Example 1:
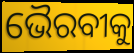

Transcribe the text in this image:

ଭୈରବୀକୁ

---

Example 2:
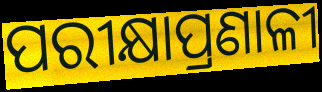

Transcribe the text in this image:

ପରୀକ୍ଷାପ୍ରଣାଳୀ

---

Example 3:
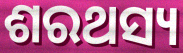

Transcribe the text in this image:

ଶରଥସ୍ୟ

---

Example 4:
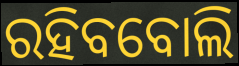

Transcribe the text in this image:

ରହିବବୋଲି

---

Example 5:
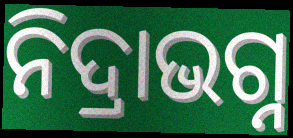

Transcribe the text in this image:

ନିଦ୍ରାଭଗ୍ନ